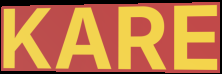
KARE